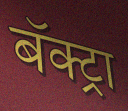
बॅक्ट्रा